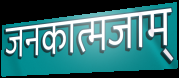
जनकात्मजाम्